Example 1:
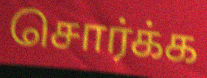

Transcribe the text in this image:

சொர்க்க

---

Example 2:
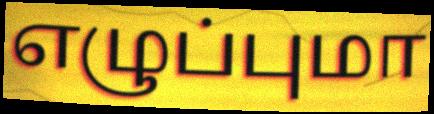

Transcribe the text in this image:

எழுப்புமா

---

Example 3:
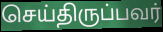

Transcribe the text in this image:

செய்திருப்பவர்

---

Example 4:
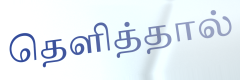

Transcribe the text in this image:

தெளித்தால்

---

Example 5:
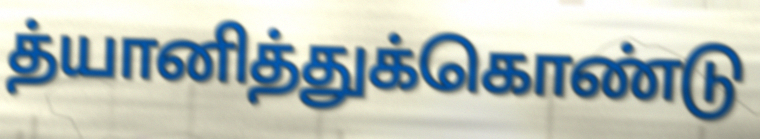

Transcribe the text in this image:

த்யானித்துக்கொண்டு